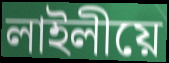
লাইলীয়ে